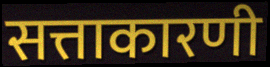
सत्ताकारणी